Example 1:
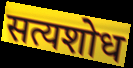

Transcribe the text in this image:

सत्यशोध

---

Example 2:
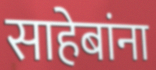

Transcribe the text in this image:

साहेबांना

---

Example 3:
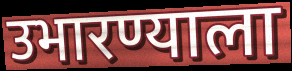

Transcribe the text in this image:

उभारण्याला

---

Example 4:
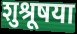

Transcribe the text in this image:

शुश्रूषया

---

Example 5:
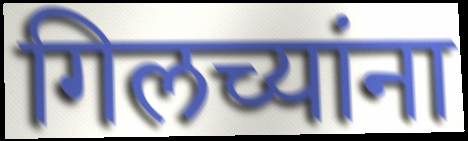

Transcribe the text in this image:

गिलच्यांना